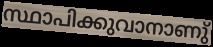
സ്ഥാപിക്കുവാനാണു്